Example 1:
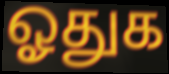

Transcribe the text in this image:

ஓதுக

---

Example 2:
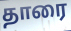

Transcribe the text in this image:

தாரை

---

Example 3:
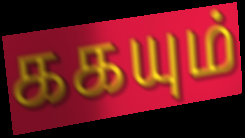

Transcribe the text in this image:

ககயும்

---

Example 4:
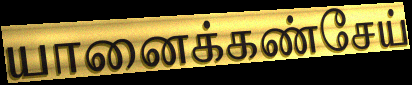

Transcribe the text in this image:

யானைக்கண்சேய்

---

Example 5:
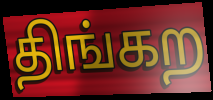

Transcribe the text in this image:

திங்கற